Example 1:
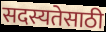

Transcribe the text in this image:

सदस्यतेसाठी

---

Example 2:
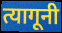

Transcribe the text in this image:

त्यागूनी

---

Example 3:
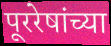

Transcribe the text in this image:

पूररेषांच्या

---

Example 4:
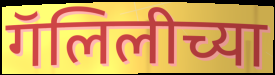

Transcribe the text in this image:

गॅलिलीच्या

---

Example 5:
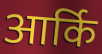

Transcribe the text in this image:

आर्कि